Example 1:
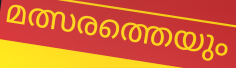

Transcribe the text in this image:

മത്സരത്തെയും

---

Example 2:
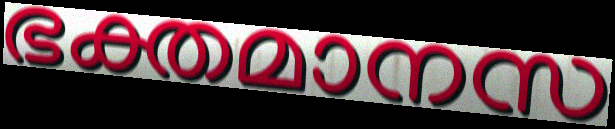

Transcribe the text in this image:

ഭക്തമാനസ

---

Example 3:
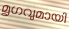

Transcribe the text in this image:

മൃഗവുമായി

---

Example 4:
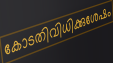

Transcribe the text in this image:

കോടതിവിധിക്കുശേഷം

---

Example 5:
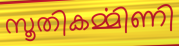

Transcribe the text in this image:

സൂതികൎമ്മിണി